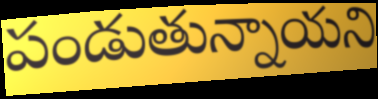
పండుతున్నాయని